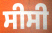
ਸੀਸੀ